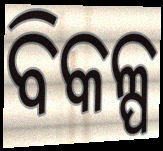
ବିକଳ୍ପ